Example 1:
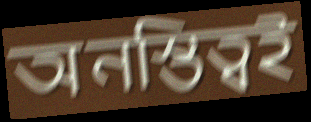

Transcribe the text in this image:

অনস্তিত্বই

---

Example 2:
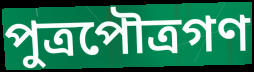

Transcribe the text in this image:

পুত্রপৌত্রগণ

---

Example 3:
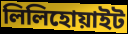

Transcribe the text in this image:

লিলিহোয়াইট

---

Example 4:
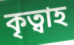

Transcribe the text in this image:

কৃত্বাহ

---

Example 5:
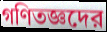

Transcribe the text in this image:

গণিতজ্ঞদের